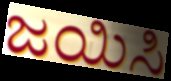
ಜಯಿಸಿ